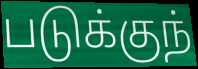
படுக்குந்